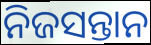
ନିଜସନ୍ତାନ